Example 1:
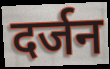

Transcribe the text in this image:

दर्जन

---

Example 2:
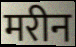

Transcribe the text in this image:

मरीन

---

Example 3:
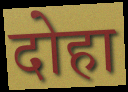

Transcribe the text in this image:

दोहा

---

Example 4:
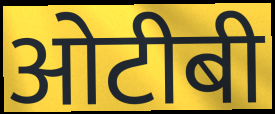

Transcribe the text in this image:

ओटीबी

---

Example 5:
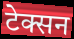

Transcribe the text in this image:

टेक्सन